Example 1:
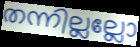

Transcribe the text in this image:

തന്നില്ലല്ലോ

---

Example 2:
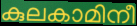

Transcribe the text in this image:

കുലകാമിനീ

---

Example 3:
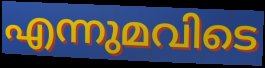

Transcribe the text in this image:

എന്നുമവിടെ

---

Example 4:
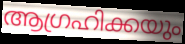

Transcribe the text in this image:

ആഗ്രഹിക്കയും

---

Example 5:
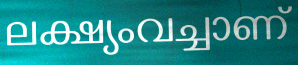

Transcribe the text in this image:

ലക്ഷ്യംവച്ചാണ്